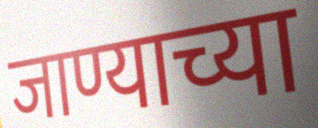
जाण्याच्या